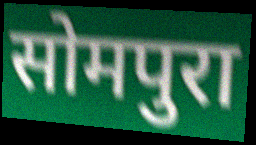
सोमपुरा